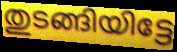
തുടങ്ങിയിട്ടേ